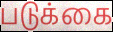
படுக்கை